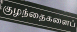
குழந்தைகளைப்